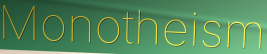
Monotheism